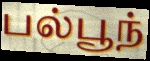
பல்பூந்